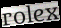
rolex